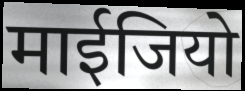
माईजियो